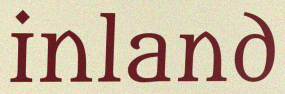
inland